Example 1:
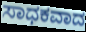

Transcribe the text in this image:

ಸಾಧಕವಾದ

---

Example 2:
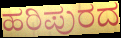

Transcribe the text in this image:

ಹರಿಪುರದ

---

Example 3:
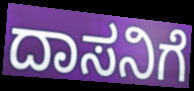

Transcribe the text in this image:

ದಾಸನಿಗೆ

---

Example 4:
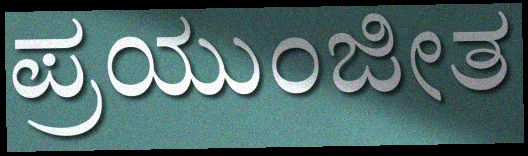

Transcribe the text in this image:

ಪ್ರಯುಂಜೀತ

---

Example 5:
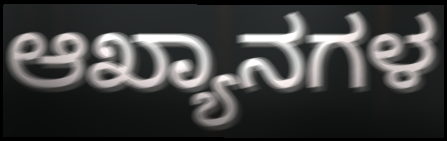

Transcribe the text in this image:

ಆಖ್ಯಾನಗಳ